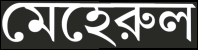
মেহেরুল